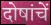
दोषांचें